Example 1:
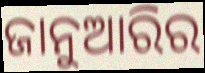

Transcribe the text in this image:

ଜାନୁଆରିର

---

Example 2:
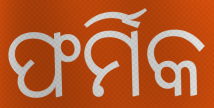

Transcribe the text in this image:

ଫର୍ମିକ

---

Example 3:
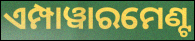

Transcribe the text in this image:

ଏମ୍ପାୱାରମେଣ୍ଟ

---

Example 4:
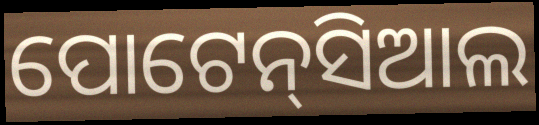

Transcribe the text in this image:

ପୋଟେନ୍‌ସିଆଲ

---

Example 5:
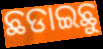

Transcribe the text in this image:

ଛଡାଇଛୁ